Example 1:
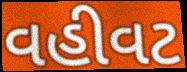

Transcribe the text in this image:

વહીવટ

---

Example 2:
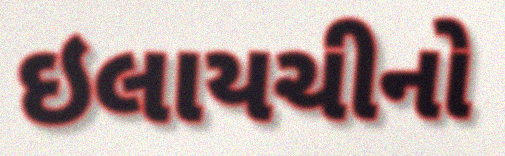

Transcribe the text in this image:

ઇલાયચીનો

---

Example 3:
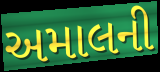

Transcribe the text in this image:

અમાલની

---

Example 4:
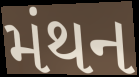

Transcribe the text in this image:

મંથન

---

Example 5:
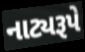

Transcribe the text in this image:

નાટ્યરૂપે